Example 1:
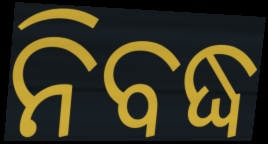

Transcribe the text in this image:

ନିବଦ୍ଧ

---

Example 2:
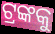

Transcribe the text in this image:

ଟ୍ରଙ୍କକୁ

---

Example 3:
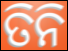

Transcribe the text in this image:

ତିନି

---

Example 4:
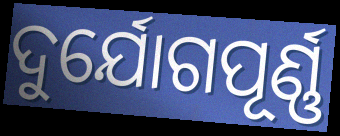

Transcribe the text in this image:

ଦୁର୍ଯୋଗପୂର୍ଣ୍ଣ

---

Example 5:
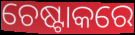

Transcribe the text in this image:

ଚେଷ୍ଟାକରେ